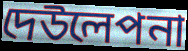
দেউলেপনা